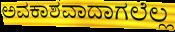
ಅವಕಾಶವಾದಾಗಲೆಲ್ಲ